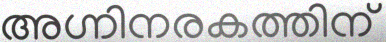
അഗ്നിനരകത്തിന്